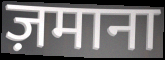
ज़माना